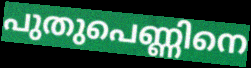
പുതുപെണ്ണിനെ